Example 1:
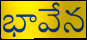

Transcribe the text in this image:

భావేన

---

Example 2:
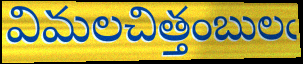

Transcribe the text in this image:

విమలచిత్తంబులఁ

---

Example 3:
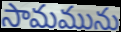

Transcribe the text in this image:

సామమును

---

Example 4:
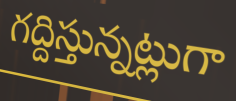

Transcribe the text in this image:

గద్దిస్తున్నట్లుగా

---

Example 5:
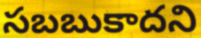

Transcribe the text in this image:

సబబుకాదని